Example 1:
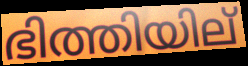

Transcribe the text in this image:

ഭിത്തിയില്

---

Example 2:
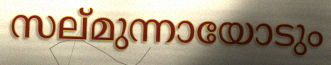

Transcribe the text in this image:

സല്മുന്നായോടും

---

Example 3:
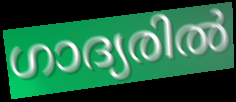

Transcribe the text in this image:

ഗാദ്യരിൽ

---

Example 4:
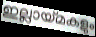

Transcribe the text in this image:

ഇല്ലായ്മകളും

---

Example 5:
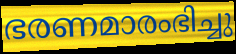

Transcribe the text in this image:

ഭരണമാരംഭിച്ചു